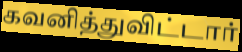
கவனித்துவிட்டார்